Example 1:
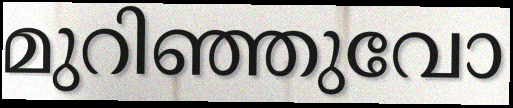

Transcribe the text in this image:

മുറിഞ്ഞുവോ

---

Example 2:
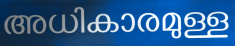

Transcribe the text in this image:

അധികാരമുള്ള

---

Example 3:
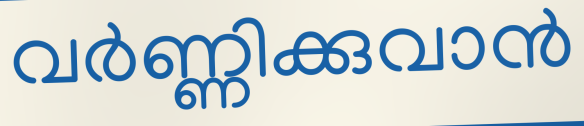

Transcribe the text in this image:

വർണ്ണിക്കുവാൻ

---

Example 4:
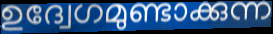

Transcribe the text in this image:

ഉദ്വേഗമുണ്ടാക്കുന്ന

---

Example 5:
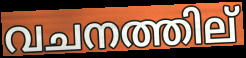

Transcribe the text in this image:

വചനത്തില്